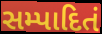
સમ્પાદિતં